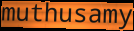
muthusamy